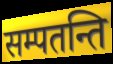
सम्पतन्ति